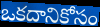
ఒకదానికోసం